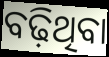
ବଢ଼ିଥିବା